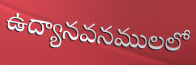
ఉద్యానవనములలో